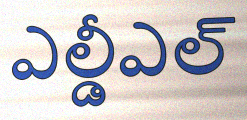
ఎల్డీఎల్